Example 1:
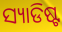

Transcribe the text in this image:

ସ୍ୟାଡିଷ୍ଟ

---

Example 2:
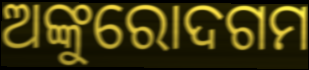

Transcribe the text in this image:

ଅଙ୍କୁରୋଦଗମ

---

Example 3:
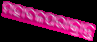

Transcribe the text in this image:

ମହାବଳପରାକ୍ରାନ୍ତ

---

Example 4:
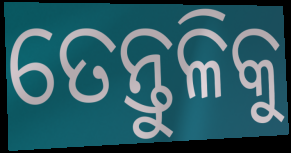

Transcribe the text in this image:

ତେନ୍ତୁଳିକୁ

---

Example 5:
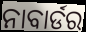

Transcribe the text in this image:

ନାବାର୍ଡର